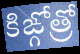
కిఙ్గోత్రో